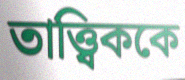
তাত্ত্বিককে